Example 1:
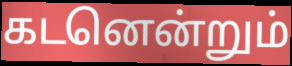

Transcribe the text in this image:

கடனென்றும்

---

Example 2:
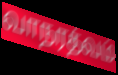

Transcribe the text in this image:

வாநரத்வம்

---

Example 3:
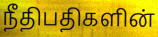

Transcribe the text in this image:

நீதிபதிகளின்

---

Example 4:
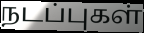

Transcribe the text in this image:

நடப்புகள்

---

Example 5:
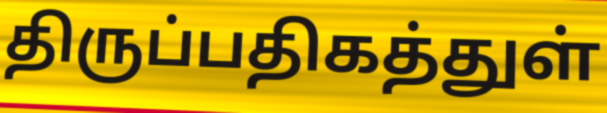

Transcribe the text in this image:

திருப்பதிகத்துள்